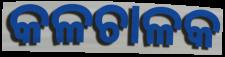
କଳଚାଳକ